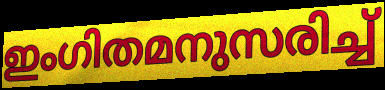
ഇംഗിതമനുസരിച്ച്